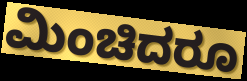
ಮಿಂಚಿದರೂ